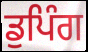
ਡੁਪਿੰਗ